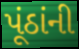
પૂંઠાંની